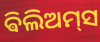
ଵିଲିଅମ୍‌ସ